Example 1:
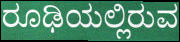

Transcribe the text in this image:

ರೂಢಿಯಲ್ಲಿರುವ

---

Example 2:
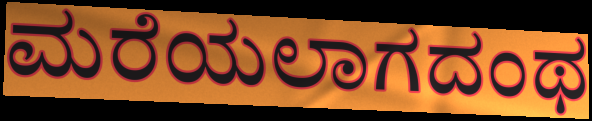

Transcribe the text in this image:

ಮರೆಯಲಾಗದಂಥ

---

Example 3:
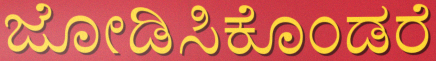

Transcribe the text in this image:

ಜೋಡಿಸಿಕೊಂಡರೆ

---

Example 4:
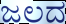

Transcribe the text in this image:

ಜಲದ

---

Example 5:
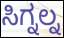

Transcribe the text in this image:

ಸಿಗ್ನಲ್ನ